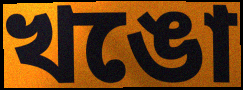
খঙো